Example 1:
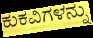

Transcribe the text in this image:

ಕುಕವಿಗಳನ್ನು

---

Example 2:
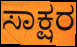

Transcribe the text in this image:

ಸಾಕ್ಷರ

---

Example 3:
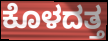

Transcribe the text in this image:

ಕೊಳದತ್ತ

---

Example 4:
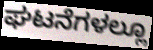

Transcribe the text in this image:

ಘಟನೆಗಳಲ್ಲೂ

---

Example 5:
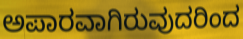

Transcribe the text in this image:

ಅಪಾರವಾಗಿರುವುದರಿಂದ